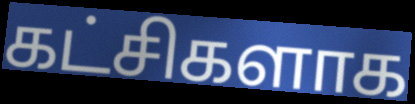
கட்சிகளாக